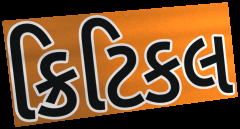
ક્રિટિકલ